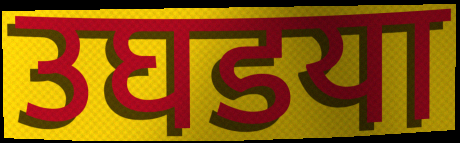
उघडया